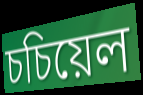
চচিয়েল